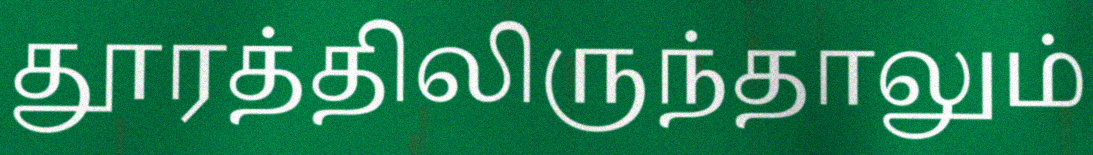
தூரத்திலிருந்தாலும்